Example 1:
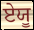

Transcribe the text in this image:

ਏਯੂ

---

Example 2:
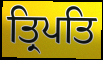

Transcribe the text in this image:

ਤ੍ਰਿਪਤਿ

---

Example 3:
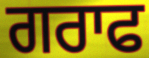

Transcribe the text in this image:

ਗਰਾਫ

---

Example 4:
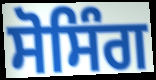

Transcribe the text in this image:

ਸੋਸਿੰਗ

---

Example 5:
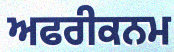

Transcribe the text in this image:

ਅਫਰੀਕਨਮ